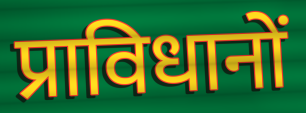
प्राविधानों